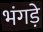
भंगड़े